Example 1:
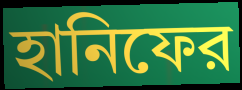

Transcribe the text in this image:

হানিফের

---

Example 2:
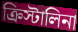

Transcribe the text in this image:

ক্রিস্টালিনা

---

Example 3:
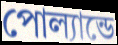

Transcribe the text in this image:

পোল্যান্ডে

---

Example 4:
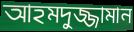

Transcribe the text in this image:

আহমদুজ্জামান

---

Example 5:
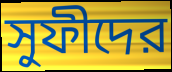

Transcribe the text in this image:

সুফীদের